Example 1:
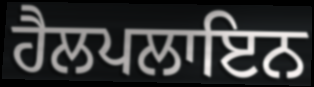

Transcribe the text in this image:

ਹੈਲਪਲਾਇਨ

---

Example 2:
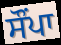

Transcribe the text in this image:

ਸੌਂਪਾ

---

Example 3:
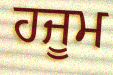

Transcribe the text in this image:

ਹਜੂਮ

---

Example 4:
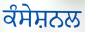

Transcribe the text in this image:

ਕੰਸੇਸ਼ਨਲ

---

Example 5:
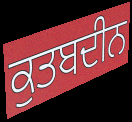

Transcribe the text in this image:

ਕੁਤਬਦੀਨ